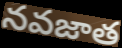
నవజాత